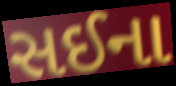
સઈના